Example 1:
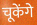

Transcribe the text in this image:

चूकेंगे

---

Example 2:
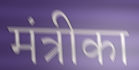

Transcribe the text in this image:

मंत्रीका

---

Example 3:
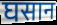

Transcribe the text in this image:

घसान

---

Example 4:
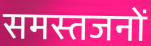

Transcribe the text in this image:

समस्तजनों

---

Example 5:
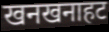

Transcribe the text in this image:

खनखनाहट